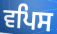
ਵਪਿਸ